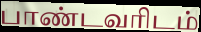
பாண்டவரிடம்